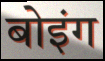
बोइंग